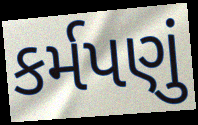
કર્મપણું